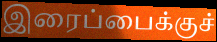
இரைப்பைக்குச்